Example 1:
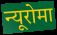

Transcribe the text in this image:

न्यूरोमा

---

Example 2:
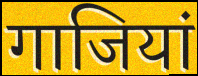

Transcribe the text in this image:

गाजियां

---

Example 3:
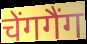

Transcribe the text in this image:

चेंगगैंग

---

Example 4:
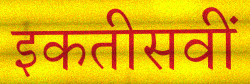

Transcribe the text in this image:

इकतीसवीं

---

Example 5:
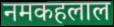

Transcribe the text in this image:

नमकहलाल